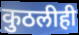
कुठलीही